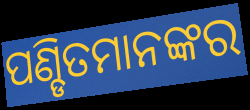
ପଣ୍ଡିତମାନଙ୍କର